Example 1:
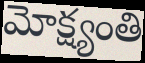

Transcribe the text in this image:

మోక్ష్యంతి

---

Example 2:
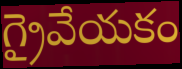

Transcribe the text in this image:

గ్రైవేయకం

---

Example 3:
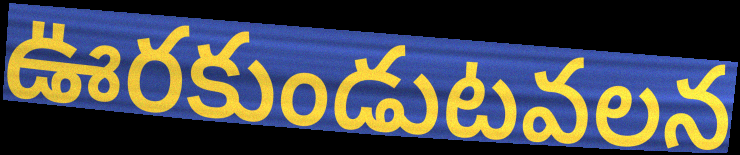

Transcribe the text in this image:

ఊరకుండుటవలన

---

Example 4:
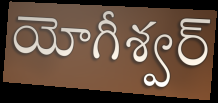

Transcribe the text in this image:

యోగీశ్వర్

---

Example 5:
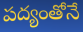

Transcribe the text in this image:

పద్యంతోనే